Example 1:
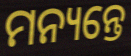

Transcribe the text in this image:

ମନ୍ୟନ୍ତେ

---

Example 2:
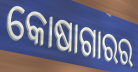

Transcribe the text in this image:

କୋଷାଗାରର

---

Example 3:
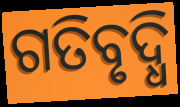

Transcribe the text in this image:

ଗତିବୃଦ୍ଧି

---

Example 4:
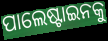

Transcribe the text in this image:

ପାଲେଷ୍ଟାଇନକୁ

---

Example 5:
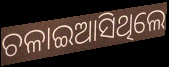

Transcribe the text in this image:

ଚଳାଇଆସିଥିଲେ